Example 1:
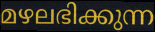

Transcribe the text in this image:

മഴലഭിക്കുന്ന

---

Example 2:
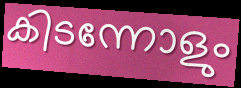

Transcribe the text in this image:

കിടന്നോളും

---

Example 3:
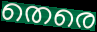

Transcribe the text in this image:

തെരെ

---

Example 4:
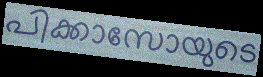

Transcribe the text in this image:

പിക്കാസോയുടെ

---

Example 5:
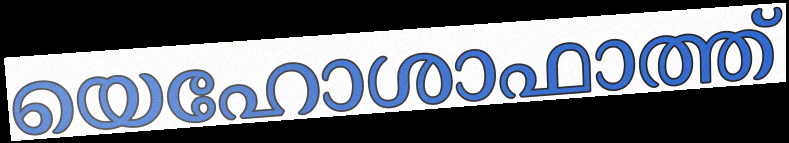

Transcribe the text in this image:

യെഹോശാഫാത്ത്